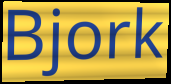
Bjork